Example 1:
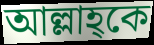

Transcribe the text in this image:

আল্লাহ্কে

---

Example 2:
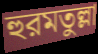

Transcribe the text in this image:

হুরমতুল্লা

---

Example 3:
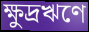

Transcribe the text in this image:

ক্ষুদ্রঋণে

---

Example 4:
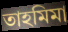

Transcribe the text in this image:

তাহমিমা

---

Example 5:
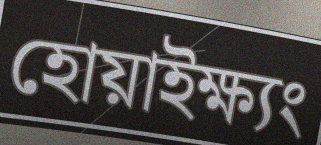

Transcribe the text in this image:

হোয়াইক্ষ্যং